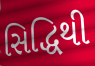
સિદ્ધિથી